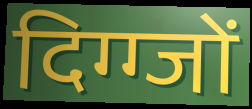
दिग्ग्जों